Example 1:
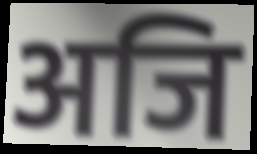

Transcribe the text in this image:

अजि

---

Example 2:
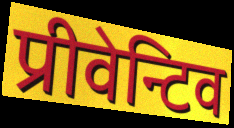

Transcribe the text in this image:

प्रीवेन्टिव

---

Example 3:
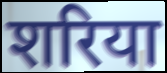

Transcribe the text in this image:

शरिया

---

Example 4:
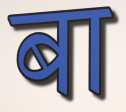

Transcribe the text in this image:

बा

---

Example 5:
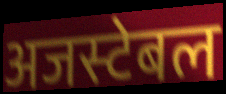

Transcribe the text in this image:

अजस्टेबल